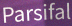
Parsifal